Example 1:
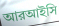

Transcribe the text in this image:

আরআইসি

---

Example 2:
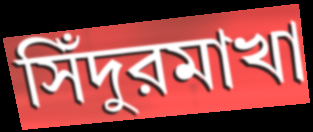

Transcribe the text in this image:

সিঁদুরমাখা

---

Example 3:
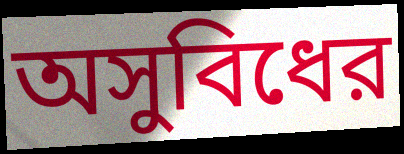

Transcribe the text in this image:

অসুবিধের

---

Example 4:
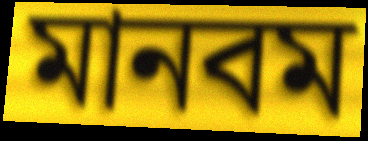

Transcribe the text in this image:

মানবম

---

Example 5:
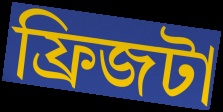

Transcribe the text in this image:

ফ্রিজটা